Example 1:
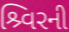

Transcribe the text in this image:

શ્ર્વિરની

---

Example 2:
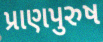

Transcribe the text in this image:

પ્રાણપુરુષ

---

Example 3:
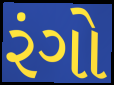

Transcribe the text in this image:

રંગો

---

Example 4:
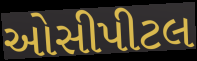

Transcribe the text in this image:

ઓસીપીટલ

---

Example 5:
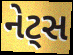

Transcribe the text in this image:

નેટ્સ